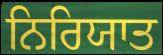
ਨਿਰਿਯਾਤ